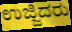
ಉಜ್ಜಿದರು